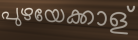
പുഴയേക്കാള്